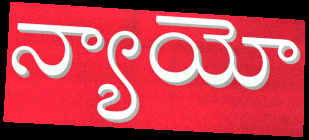
న్యాయో